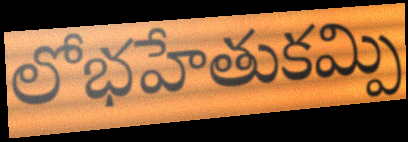
లోభహేతుకమ్పి